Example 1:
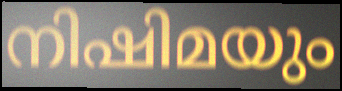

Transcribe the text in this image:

നിഷിമയും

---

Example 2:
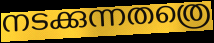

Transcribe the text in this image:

നടക്കുന്നതത്രെ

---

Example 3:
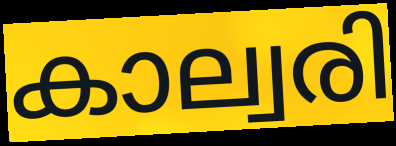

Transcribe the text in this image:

കാല്വരി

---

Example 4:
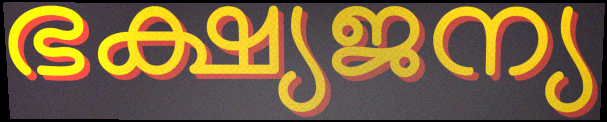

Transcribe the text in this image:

ഭക്ഷ്യജന്യ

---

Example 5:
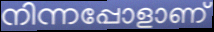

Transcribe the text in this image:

നിന്നപ്പോളാണ്